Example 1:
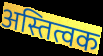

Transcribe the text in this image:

अस्तित्वक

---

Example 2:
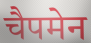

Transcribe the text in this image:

चैपमेन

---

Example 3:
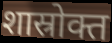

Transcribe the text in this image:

शास्रोक्त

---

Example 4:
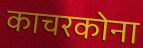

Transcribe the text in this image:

काचरकोना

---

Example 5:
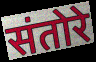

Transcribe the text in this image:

संतोरे